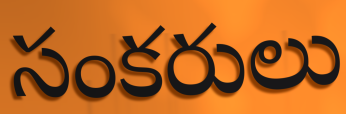
సంకరులు